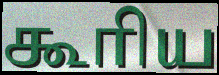
கூரிய